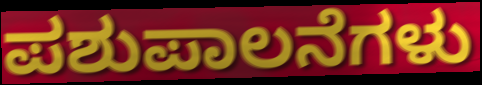
ಪಶುಪಾಲನೆಗಳು